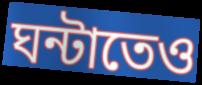
ঘন্টাতেও